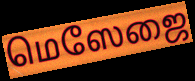
மெஸேஜை